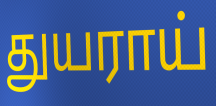
துயராய்